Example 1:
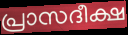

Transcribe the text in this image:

പ്രാസദീക്ഷ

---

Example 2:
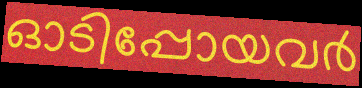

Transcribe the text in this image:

ഓടിപ്പോയവർ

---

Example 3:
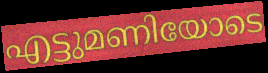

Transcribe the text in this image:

എട്ടുമണിയോടെ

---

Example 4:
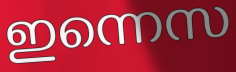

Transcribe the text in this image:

ഇന്നെസ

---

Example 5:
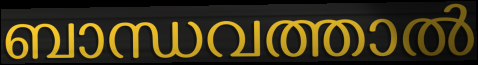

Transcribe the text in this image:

ബാന്ധവത്താൽ